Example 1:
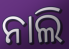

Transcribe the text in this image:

ନାଲି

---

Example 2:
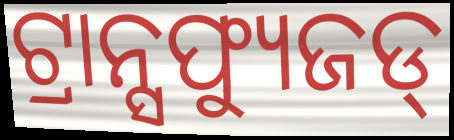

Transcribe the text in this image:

ଟ୍ରାନ୍ସଫ୍ୟୁଜଡ୍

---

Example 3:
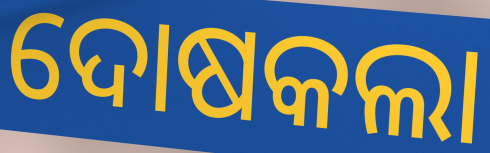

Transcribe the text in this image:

ଦୋଷକଲା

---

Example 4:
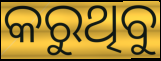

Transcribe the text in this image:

କରୁଥିବୁ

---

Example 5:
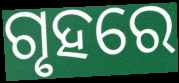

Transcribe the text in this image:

ଗୃହରେ